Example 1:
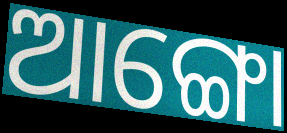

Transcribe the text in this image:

ଆଙ୍ଗୋ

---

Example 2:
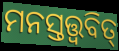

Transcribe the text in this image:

ମନସ୍ତତ୍ତ୍ଵବିତ୍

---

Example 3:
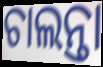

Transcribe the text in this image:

ଚାଲନ୍ତା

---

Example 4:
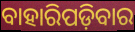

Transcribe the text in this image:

ବାହାରିପଡ଼ିବାର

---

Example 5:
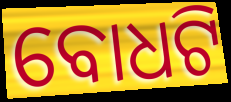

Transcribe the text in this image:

ବୋଧଟି